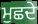
ਮੁਛਦੇ